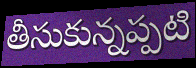
తీసుకున్నప్పటి